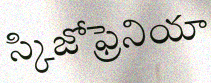
స్కిజోఫ్రెనియా